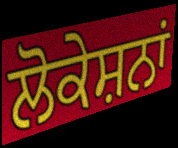
ਲੋਕੇਸ਼ਨਾਂ